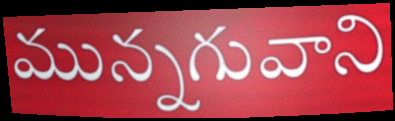
మున్నగువాని